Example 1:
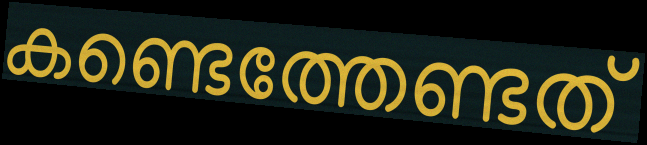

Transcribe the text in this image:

കണ്ടെത്തേണ്ടത്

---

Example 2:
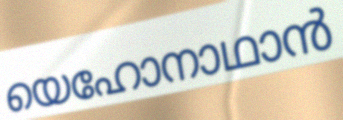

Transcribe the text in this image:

യെഹോനാഥാൻ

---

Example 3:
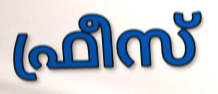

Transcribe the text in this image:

ഫ്രീസ്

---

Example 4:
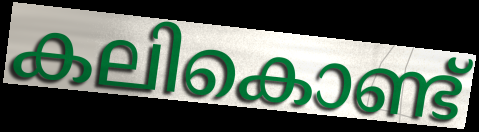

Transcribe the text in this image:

കലികൊണ്ട്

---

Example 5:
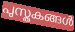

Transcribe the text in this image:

പുസ്തകങ്ങൾ